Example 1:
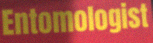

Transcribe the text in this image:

Entomologist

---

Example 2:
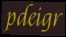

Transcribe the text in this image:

pdeigr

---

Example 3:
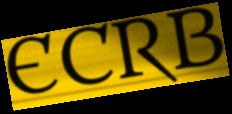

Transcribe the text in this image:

ECRB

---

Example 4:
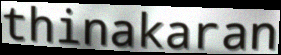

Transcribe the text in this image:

thinakaran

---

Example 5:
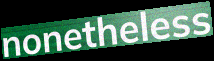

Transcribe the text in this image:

nonetheless